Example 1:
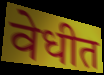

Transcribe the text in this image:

वेधीत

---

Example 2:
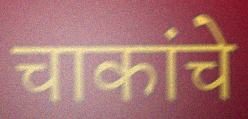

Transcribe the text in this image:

चाकांचे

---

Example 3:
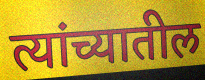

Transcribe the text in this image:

त्यांच्यातील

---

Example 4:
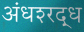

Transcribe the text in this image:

अंधश्रद्ध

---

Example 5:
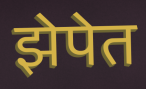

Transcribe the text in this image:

झेपेत